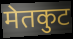
मेतकुट